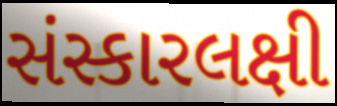
સંસ્કારલક્ષી